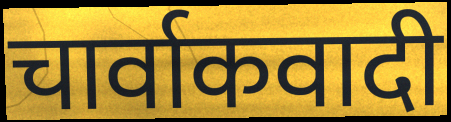
चार्वाकवादी